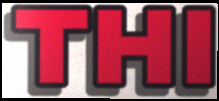
THI